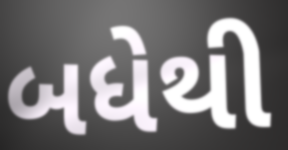
બધેથી